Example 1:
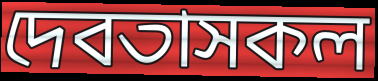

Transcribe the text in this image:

দেবতাসকল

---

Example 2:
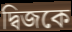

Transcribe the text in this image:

দ্বিজকে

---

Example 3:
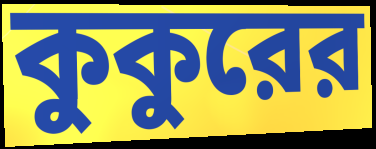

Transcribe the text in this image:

কুকুরের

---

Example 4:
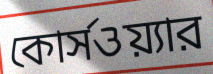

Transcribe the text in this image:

কোর্সওয়্যার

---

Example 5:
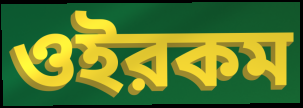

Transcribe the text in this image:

ওইরকম